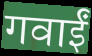
गवाईं